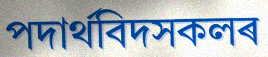
পদাৰ্থবিদসকলৰ